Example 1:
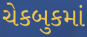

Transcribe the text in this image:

ચેકબુકમાં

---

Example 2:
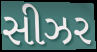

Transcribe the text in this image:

સીઝર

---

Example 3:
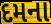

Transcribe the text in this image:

દમના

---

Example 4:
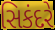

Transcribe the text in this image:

સિકંદરે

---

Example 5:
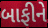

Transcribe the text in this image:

બાફીને